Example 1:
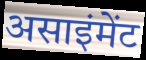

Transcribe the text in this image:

असाइंमेंट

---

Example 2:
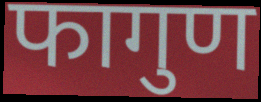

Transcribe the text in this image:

फागुण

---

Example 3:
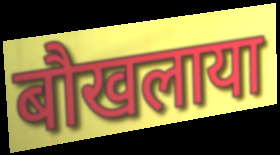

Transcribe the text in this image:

बौखलाया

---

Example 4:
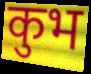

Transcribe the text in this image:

कुभ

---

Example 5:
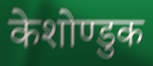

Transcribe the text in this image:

केशोण्डुक